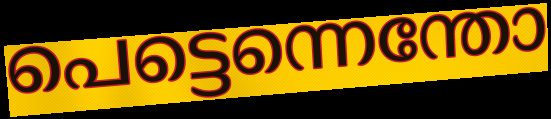
പെട്ടെന്നെന്തോ